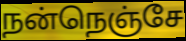
நன்நெஞ்சே